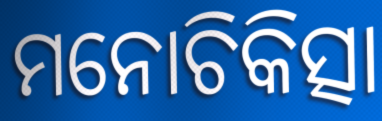
ମନୋଚିକିତ୍ସା